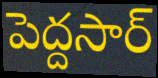
పెద్దసార్